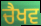
ਚੈਖਵ